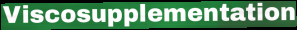
Viscosupplementation